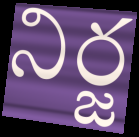
నిర్జ